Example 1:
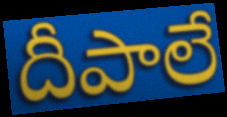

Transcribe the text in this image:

దీపాలే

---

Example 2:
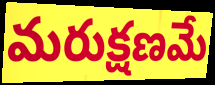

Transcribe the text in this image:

మరుక్షణమే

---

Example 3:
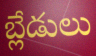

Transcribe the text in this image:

బ్లేడులు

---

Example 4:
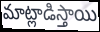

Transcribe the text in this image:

మాట్లాడిస్తాయి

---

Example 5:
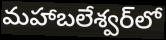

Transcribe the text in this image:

మహాబలేశ్వర్‌లో